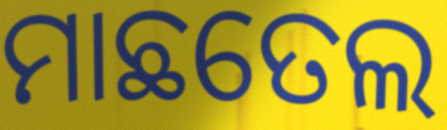
ମାଛତେଲ